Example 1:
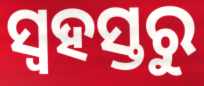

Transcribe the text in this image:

ସ୍ୱହସ୍ତରୁ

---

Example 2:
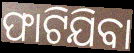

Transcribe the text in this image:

ଫାଟିଯିବା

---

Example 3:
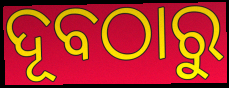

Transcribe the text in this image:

ଦୂବଠାରୁ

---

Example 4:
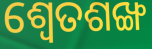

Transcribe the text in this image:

ଶ୍ୱେତଶଙ୍ଖ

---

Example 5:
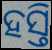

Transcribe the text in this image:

ହସ୍ତି